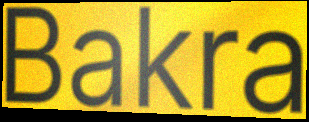
Bakra